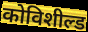
कोविशील्ड